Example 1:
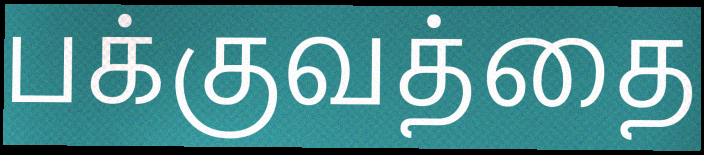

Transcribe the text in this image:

பக்குவத்தை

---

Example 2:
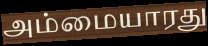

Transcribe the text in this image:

அம்மையாரது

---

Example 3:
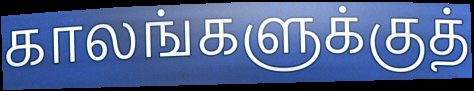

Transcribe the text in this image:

காலங்களுக்குத்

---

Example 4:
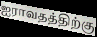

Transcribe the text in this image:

ஐராவதத்திற்கு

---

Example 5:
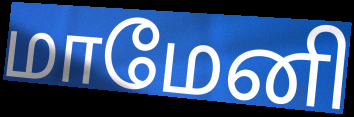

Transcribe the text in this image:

மாமேனி